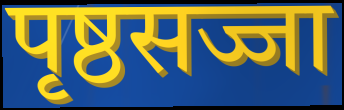
पृष्ठसज्जा